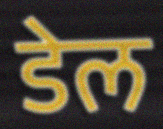
डेल